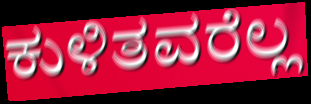
ಕುಳಿತವರೆಲ್ಲ